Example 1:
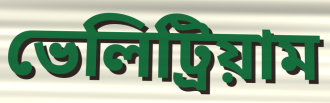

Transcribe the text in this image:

ভেলিট্রিয়াম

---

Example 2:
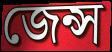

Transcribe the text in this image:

জেন্স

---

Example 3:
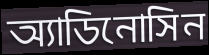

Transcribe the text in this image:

অ্যাডিনোসিন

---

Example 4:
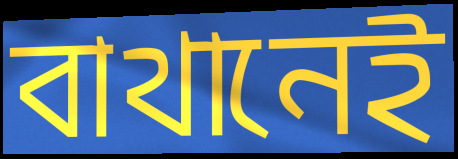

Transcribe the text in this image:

বাথানেই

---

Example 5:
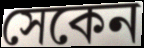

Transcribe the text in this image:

সেকেন